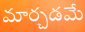
మార్చడమే